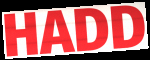
HADD